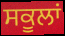
ਸਕੂਲਾਂ